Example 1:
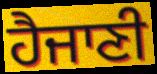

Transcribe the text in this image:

ਹੈਜਾਣੀ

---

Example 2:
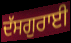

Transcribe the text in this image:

ਦੱਸਗੁਰਾਈ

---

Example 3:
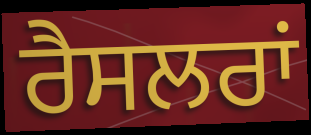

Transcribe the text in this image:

ਰੈਸਲਰਾਂ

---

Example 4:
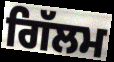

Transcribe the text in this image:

ਗਿੱਲਮ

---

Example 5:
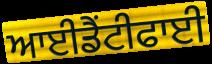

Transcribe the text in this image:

ਆਈਡੈਂਟੀਫਾਈ